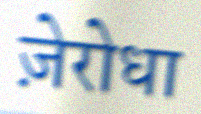
ज़ेरोधा